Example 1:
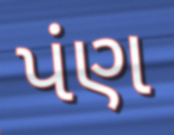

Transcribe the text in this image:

પંણ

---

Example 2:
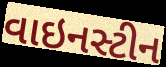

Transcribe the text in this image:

વાઇનસ્ટીન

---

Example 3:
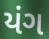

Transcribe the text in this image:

યંગ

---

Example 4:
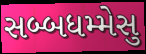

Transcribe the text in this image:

સબ્બધમ્મેસુ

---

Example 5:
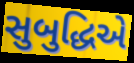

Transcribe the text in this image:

સુબુદ્ધિએ